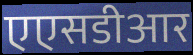
एएसडीआर